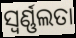
ସ୍ଵର୍ଣ୍ଣଲତା